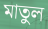
মাতুল